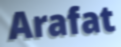
Arafat